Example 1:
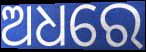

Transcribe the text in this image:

ଅଧରେ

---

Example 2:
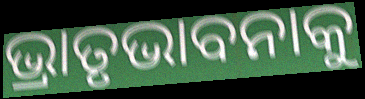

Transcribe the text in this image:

ଭ୍ରାତୃଭାବନାକୁ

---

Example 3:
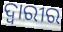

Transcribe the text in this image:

ଦ୍ୱାରୀର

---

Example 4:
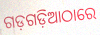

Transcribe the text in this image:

ଗଡ଼ଗଡ଼ିଆଠାରେ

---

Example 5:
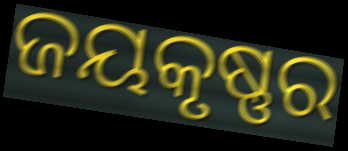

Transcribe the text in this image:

ଜୟକୃଷ୍ଣର